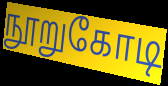
நூறுகோடி